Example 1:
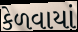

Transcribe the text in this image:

કેળવાયાં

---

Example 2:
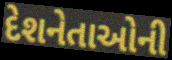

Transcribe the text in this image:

દેશનેતાઓની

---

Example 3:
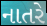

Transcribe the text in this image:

નાતરે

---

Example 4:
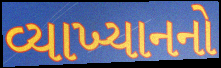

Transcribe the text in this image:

વ્યાખ્યાનનો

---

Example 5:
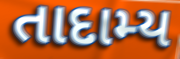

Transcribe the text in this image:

તાદામ્ય